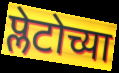
प्लेटोच्या